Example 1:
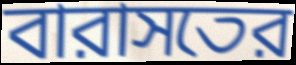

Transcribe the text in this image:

বারাসতের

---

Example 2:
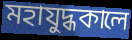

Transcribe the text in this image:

মহাযুদ্ধকালে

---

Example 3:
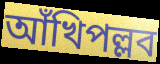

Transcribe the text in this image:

আঁখিপল্লব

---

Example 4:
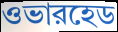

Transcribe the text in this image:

ওভারহেড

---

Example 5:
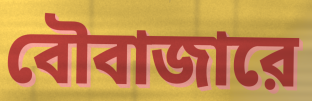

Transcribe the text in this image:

বৌবাজারে